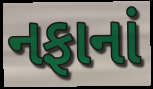
નફાનાં